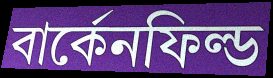
বার্কেনফিল্ড